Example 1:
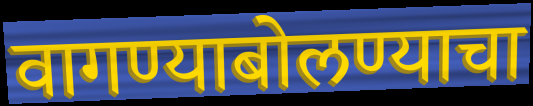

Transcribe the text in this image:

वागण्याबोलण्याचा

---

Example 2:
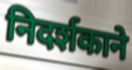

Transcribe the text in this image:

निदर्शकाने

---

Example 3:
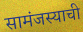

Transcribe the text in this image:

सामंजस्याची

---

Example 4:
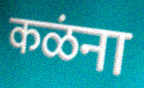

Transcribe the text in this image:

कळंना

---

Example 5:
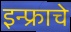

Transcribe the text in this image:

इन्फ्राचे